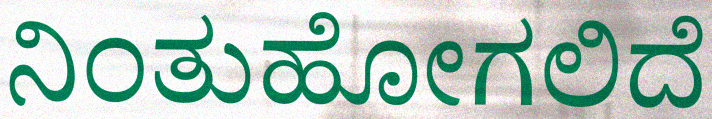
ನಿಂತುಹೋಗಲಿದೆ